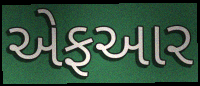
એફઆર